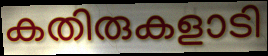
കതിരുകളാടി